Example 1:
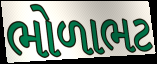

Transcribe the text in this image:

ભોળાભટ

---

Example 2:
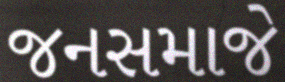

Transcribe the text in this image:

જનસમાજે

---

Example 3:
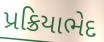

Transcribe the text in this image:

પ્રક્રિયાભેદ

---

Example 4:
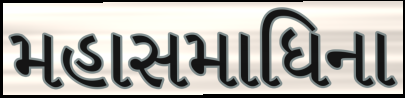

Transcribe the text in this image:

મહાસમાધિના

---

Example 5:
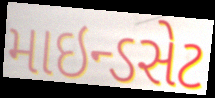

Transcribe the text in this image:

માઇન્ડસેટ